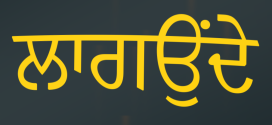
ਲਾਗਉਂਦੇ